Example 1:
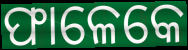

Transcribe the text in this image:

ଫାଳେକେ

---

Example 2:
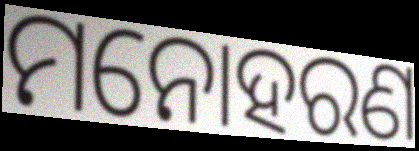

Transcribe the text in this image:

ମନୋହରଣ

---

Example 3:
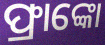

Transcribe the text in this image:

ଫ୍ରାଙ୍କୋ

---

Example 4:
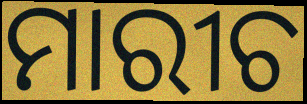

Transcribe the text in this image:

ମାରୀଚ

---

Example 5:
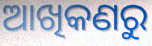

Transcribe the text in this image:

ଆଖିକଣରୁ